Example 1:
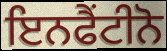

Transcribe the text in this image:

ਇਨਫੈਂਟੀਨੋ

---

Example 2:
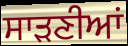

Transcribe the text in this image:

ਸਾੜਣੀਆਂ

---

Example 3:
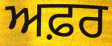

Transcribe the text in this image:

ਅਫ਼ਰ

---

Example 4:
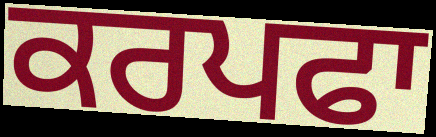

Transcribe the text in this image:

ਕਰਪਫਾ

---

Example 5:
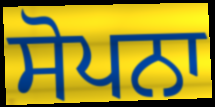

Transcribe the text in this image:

ਸੋਪਨਾ